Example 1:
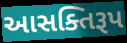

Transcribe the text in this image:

આસક્તિરૂપ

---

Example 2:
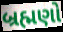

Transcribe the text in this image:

બ્રહ્મણો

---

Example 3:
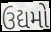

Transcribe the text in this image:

ઉદ્યમો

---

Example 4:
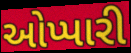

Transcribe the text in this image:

ઓપ્પારી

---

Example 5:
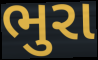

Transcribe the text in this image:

ભુરા